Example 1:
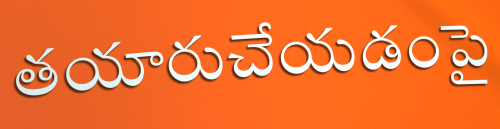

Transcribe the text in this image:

తయారుచేయడంపై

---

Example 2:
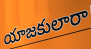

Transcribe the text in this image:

యాజకులారా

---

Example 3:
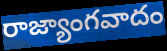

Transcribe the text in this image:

రాజ్యాంగవాదం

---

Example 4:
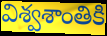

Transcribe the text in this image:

విశ్వశాంతికి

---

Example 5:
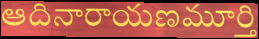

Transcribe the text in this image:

ఆదినారాయణమూర్తి